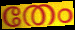
തേം